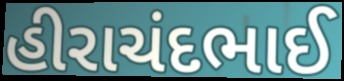
હીરાચંદભાઈ